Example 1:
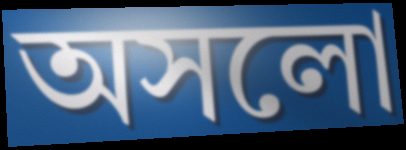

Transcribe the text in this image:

অসলো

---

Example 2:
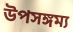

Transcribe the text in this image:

উপসঙ্গম্য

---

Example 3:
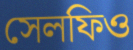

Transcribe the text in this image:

সেলফিও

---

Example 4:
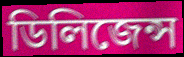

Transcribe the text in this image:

ডিলিজেন্স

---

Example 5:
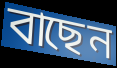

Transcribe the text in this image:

বাছেন